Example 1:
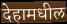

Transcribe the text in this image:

देहामधील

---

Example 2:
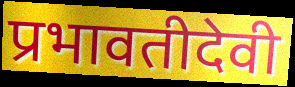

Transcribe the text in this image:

प्रभावतीदेवी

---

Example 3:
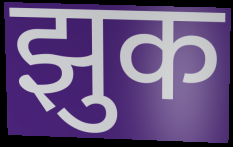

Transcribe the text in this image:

झुक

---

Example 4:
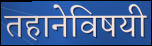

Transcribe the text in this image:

तहानेविषयी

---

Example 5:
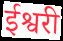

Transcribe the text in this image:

ईश्वरी